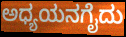
ಅಧ್ಯಯನಗೈದು